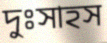
দুঃসাহস